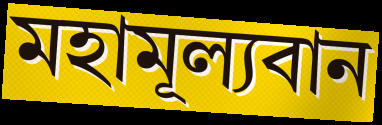
মহামূল্যবান